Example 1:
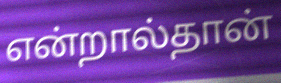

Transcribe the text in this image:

என்றால்தான்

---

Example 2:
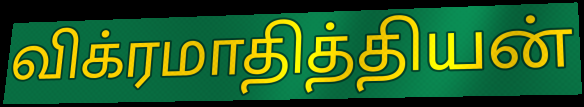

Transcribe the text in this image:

விக்ரமாதித்தியன்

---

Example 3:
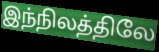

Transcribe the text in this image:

இந்நிலத்திலே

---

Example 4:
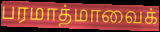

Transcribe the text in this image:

பரமாத்மாவைக்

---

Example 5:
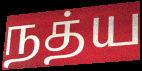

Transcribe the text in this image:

நத்ய